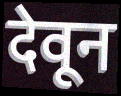
देवून